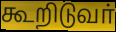
கூறிடுவர்